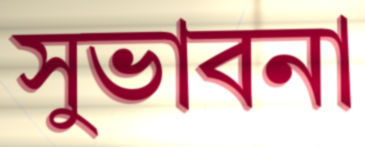
সুভাবনা